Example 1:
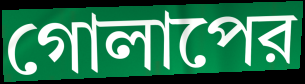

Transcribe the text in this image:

গোলাপের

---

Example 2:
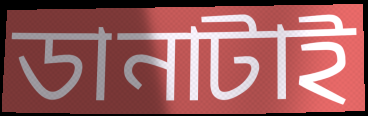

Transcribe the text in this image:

ডানাটাই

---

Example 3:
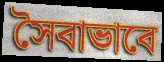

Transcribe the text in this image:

সৈবাভাবে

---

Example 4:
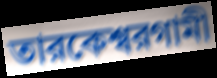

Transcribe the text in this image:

তারকেশ্বরগামী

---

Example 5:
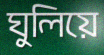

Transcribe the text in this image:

ঘুলিয়ে